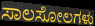
ಸಾಲಸೋಲಗಳು